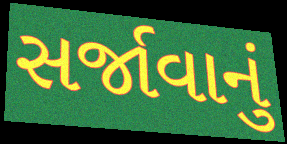
સર્જાવાનું